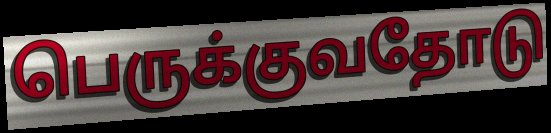
பெருக்குவதோடு